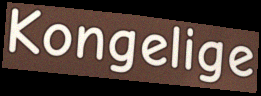
Kongelige